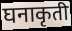
घनाकृती